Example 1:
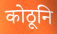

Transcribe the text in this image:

कोठूनि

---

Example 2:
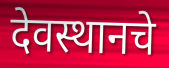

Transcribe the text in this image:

देवस्थानचे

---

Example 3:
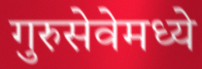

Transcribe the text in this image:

गुरुसेवेमध्ये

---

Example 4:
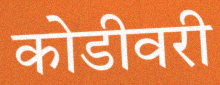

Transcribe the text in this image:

कोडीवरी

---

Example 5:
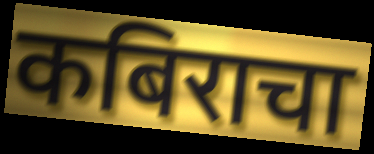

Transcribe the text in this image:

कबिराचा